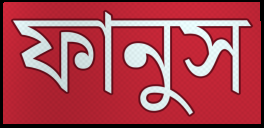
ফানুস